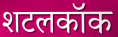
शटलकॉक